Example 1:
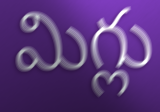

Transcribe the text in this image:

మిగ్లు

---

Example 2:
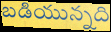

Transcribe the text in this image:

బడియున్నది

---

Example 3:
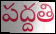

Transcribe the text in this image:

పద్దతి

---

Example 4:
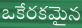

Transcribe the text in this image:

ఒకేరకమైన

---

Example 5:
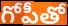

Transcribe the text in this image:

గోపీతో